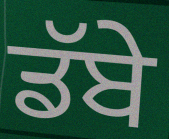
ਡੱਬੇ